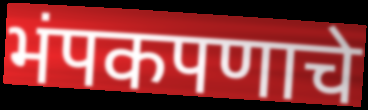
भंपकपणाचे